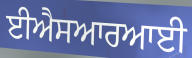
ਈਐਸਆਰਆਈ